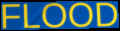
FLOOD